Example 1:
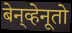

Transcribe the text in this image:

बेन्‌व्हेनूतो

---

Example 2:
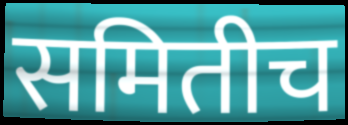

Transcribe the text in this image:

समितीच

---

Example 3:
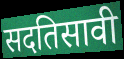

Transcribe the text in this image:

सदतिसावी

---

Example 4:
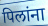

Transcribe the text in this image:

पिलांना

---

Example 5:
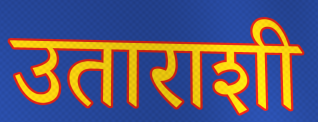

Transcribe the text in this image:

उताराशी